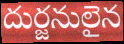
దుర్జనులైన